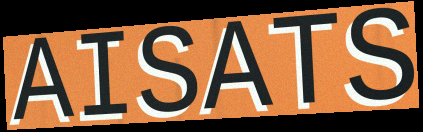
AISATS